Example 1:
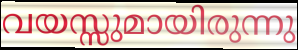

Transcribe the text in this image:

വയസ്സുമായിരുന്നു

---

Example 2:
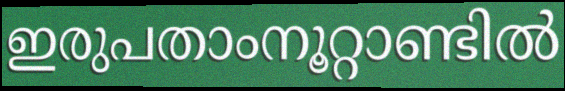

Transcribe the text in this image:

ഇരുപതാംനൂറ്റാണ്ടിൽ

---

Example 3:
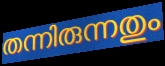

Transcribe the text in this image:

തന്നിരുന്നതും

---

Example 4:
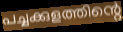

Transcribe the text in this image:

പച്ചക്കുളത്തിന്റെ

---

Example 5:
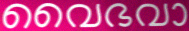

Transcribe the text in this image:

വൈഭവാ